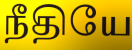
நீதியே